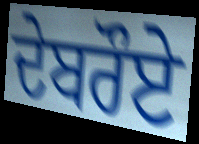
ਦੇਬਰੌਏ